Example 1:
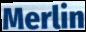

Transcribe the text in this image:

Merlin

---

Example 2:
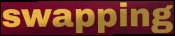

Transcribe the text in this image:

swapping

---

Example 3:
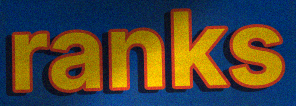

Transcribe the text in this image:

ranks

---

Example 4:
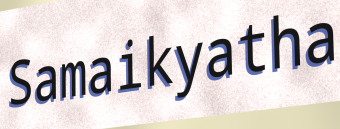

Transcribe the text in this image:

Samaikyatha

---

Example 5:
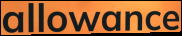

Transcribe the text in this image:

allowance